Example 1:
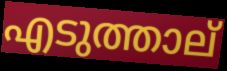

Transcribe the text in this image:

എടുത്താല്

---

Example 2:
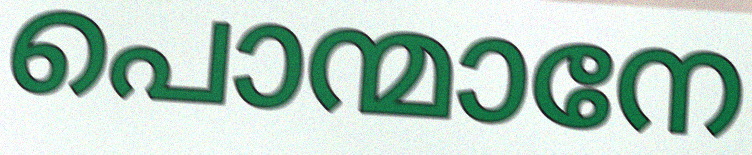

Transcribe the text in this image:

പൊന്മാനേ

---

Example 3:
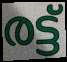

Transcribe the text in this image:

രട്ട്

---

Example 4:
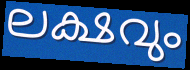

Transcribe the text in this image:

ലക്ഷവും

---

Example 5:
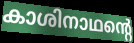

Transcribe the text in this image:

കാശിനാഥന്റെ